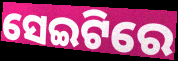
ସେଇଟିରେ